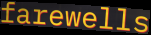
farewells